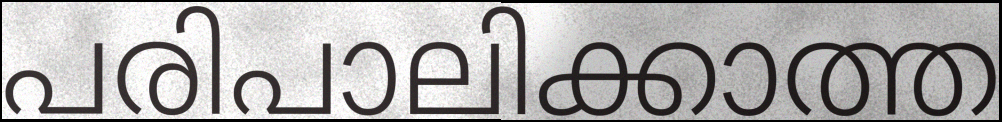
പരിപാലിക്കാത്ത